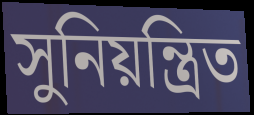
সুনিয়ন্ত্ৰিত